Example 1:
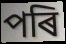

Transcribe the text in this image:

পৰি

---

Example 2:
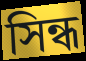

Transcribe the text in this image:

সিন্ধ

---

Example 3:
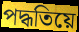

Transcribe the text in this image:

পদ্ধতিয়ে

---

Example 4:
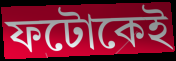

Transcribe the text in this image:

ফটোকেই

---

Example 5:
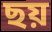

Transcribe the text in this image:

ছয়